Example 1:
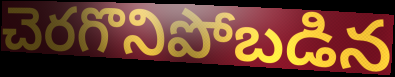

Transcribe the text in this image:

చెరగొనిపోబడిన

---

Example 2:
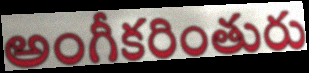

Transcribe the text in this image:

అంగీకరింతురు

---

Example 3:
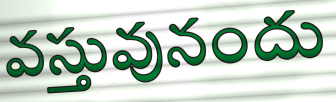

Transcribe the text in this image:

వస్తువునందు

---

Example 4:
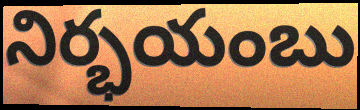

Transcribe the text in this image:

నిర్భయంబు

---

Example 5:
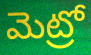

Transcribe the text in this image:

మెట్రో